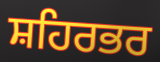
ਸ਼ਹਿਰਭਰ